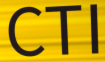
CTI